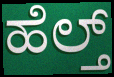
ಹೆಲ್ತ್